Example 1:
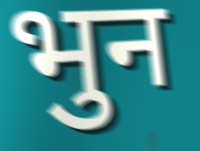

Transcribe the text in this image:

भुन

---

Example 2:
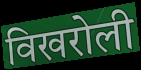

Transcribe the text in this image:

विखरोली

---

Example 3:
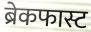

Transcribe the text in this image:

ब्रेकफास्ट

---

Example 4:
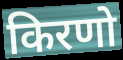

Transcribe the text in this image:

किरणो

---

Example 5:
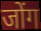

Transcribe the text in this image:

जोंग